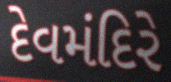
દેવમંદિરે